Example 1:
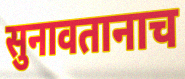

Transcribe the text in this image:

सुनावतानाच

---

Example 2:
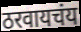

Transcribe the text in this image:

ठरवायचंय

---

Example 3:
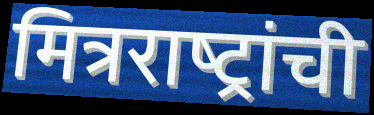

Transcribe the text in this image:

मित्रराष्ट्रांची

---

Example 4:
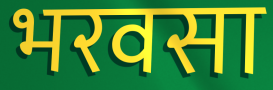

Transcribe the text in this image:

भरवसा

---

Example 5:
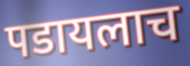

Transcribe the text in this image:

पडायलाच